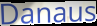
Danaus